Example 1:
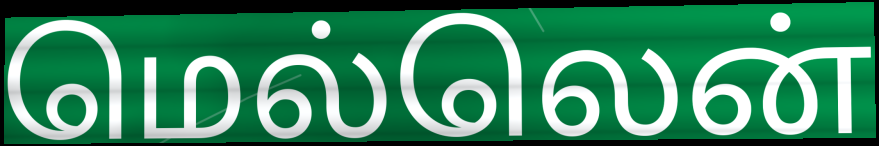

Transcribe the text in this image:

மெல்லென்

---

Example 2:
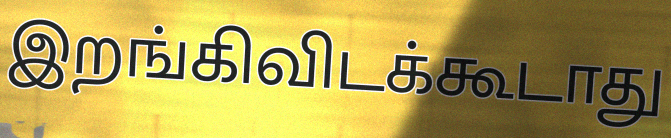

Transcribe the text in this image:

இறங்கிவிடக்கூடாது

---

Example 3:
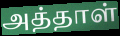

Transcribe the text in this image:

அத்தாள்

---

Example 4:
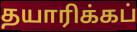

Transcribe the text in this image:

தயாரிக்கப்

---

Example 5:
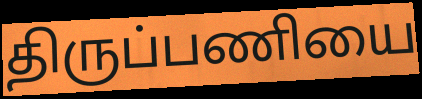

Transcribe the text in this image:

திருப்பணியை